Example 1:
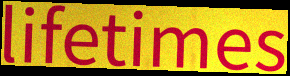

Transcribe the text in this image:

lifetimes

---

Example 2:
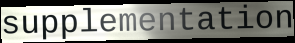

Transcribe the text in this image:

supplementation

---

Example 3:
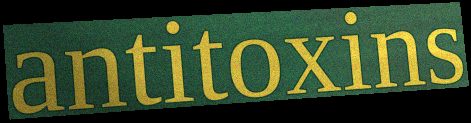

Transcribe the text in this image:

antitoxins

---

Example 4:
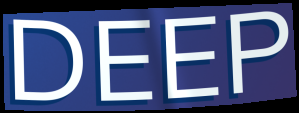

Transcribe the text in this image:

DEEP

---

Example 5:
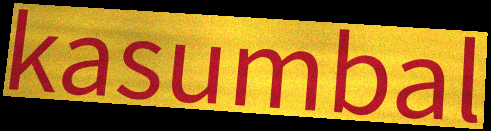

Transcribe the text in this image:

kasumbal